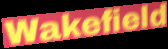
Wakefield